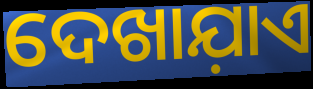
ଦେଖାଯ଼ାଏ